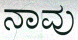
ನಾವು